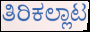
ತಿರಿಕಲ್ಲಾಟ